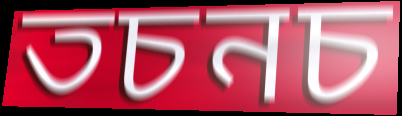
তচনচ